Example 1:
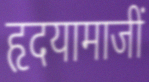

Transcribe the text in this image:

हृदयामाजीं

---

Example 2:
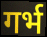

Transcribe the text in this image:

गर्भ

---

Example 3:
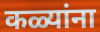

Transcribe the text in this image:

कळ्यांना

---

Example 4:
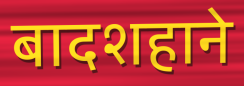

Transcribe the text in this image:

बादशहाने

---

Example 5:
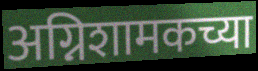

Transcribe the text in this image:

अग्निशामकच्या